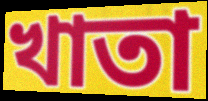
খাতা